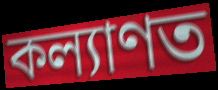
কল্যাণত